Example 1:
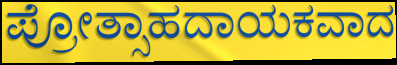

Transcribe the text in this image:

ಪ್ರೋತ್ಸಾಹದಾಯಕವಾದ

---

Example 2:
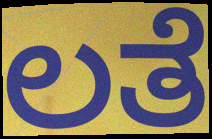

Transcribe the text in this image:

ಲತೆ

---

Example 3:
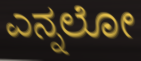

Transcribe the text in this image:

ಎನ್ನಲೋ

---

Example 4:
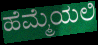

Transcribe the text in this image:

ಹೆಮ್ಮೆಯಲಿ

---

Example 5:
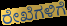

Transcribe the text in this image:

ರೇಖೆಗಳಿಗೆ